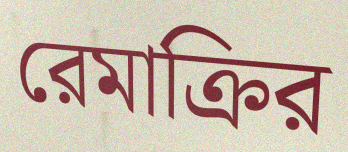
রেমাক্রির